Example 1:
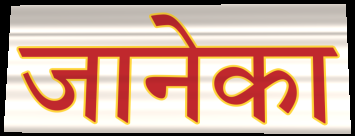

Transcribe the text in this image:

जानेका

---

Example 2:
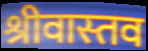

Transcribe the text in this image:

श्रीवास्‍तव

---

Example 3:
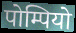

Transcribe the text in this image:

पोम्पियो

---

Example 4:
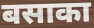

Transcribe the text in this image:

बसाका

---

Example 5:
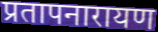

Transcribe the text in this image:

प्रतापनारायण